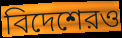
বিদেশেরও